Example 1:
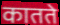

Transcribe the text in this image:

कातते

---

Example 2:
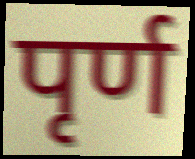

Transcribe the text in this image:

पृर्ण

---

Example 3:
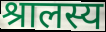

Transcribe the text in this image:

श्रालस्य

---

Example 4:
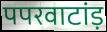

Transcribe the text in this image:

पपरवाटांड़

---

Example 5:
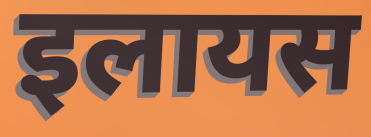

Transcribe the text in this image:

इलायस